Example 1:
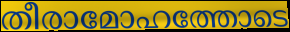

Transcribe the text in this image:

തീരാമോഹത്തോടെ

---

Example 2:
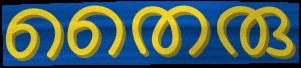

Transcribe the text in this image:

തൈരു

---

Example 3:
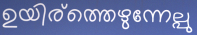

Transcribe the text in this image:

ഉയിര്ത്തെഴുന്നേല്പു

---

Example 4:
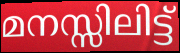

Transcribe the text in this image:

മനസ്സിലിട്ട്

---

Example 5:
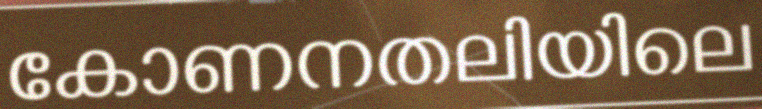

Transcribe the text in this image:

കോണനതലിയിലെ